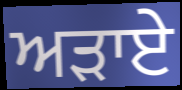
ਅੜਾਏ